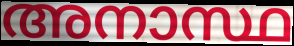
അനാസ്ഥ